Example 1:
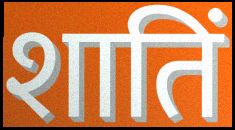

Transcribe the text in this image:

शातिं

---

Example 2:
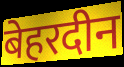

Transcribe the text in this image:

बेहरदीन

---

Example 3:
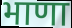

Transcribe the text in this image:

भाणा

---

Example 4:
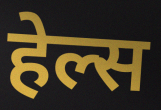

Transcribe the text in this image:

हेल्स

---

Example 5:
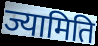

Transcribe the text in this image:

ज्यामिति